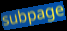
subpage